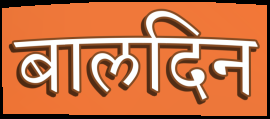
बालदिन